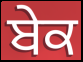
ਬੇਕ